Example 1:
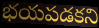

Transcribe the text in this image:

భయపడకని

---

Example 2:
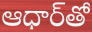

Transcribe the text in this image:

ఆధార్‌తో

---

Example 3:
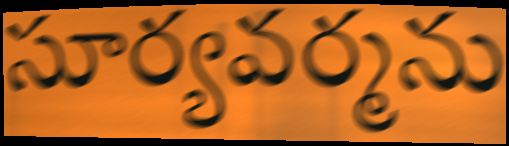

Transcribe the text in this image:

సూర్యవర్మను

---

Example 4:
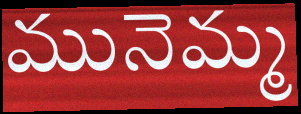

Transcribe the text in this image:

మునెమ్మ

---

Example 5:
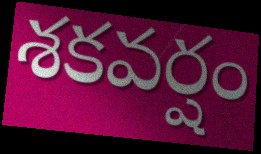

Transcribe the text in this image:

శకవర్షం